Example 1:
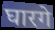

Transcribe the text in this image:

घारगे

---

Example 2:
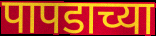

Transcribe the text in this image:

पापडाच्या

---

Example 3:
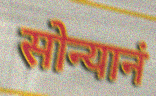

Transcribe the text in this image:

सोन्यानं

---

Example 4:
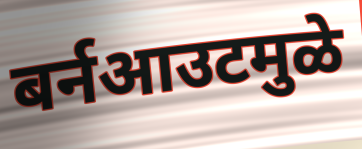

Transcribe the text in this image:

बर्नआउटमुळे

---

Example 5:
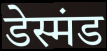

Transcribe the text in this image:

डेस्मंड